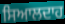
ਸਿਆਲਦਾਹ